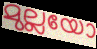
മുല്ലയോ